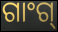
ଗାଂଗ୍